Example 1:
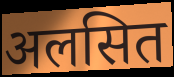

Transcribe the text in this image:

अलसित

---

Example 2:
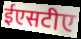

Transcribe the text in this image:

ईएसटीए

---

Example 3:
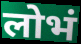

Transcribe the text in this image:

लोभं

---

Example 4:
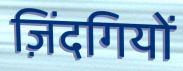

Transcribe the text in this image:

ज़िंदगियों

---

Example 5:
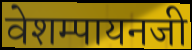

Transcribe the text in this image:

वेशम्पायनजी